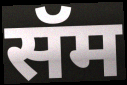
सॅम